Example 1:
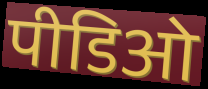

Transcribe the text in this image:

पीडिओ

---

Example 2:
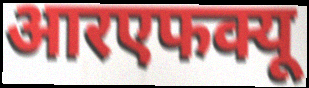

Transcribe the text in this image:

आरएफक्यू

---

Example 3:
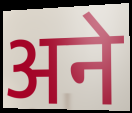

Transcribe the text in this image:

अने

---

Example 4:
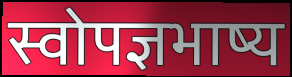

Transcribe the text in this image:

स्वोपज्ञभाष्य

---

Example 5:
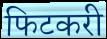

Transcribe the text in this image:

फिटकरी